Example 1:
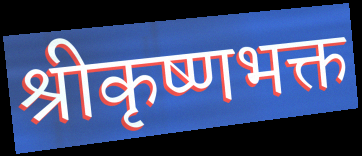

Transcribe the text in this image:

श्रीकृष्णभक्त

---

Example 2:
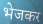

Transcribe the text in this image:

भेजकर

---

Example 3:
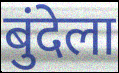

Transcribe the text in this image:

बुंदेला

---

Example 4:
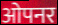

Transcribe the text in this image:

ओपनर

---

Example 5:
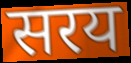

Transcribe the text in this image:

सरय